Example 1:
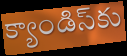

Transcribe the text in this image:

క్యాండిస్‌కు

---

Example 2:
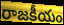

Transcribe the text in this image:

రాజకీయం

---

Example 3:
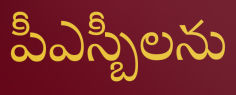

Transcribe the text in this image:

పీఎస్బీలను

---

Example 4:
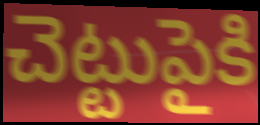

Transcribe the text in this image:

చెట్టుపైకి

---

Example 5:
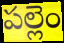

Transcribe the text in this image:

పల్లెం